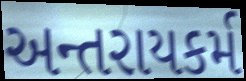
અન્તરાયકર્મ